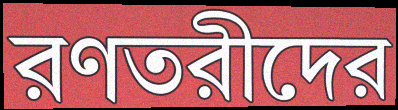
রণতরীদের